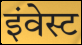
इंवेस्ट